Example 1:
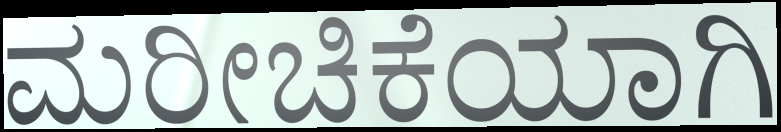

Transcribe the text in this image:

ಮರೀಚಿಕೆಯಾಗಿ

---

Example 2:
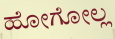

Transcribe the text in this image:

ಹೋಗೋಲ್ಲ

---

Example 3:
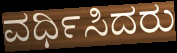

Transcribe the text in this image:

ವರ್ಧಿಸಿದರು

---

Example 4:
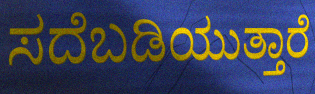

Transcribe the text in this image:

ಸದೆಬಡಿಯುತ್ತಾರೆ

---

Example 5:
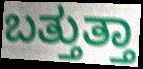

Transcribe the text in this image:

ಬತ್ತುತ್ತಾ